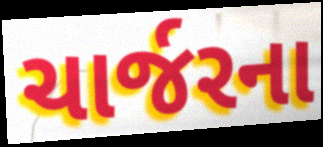
ચાર્જરના